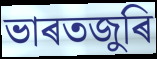
ভাৰতজুৰি